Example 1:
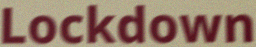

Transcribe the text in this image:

Lockdown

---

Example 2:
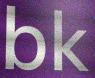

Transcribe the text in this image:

bk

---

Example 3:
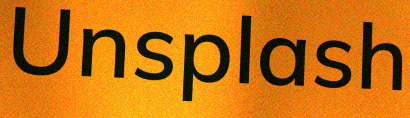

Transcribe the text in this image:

Unsplash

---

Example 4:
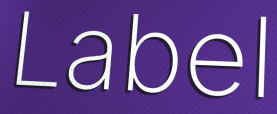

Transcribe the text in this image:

Label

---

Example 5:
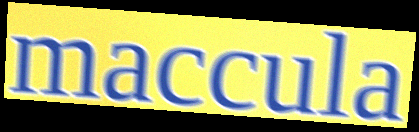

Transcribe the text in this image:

maccula